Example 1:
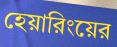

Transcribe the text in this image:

হেয়ারিংয়ের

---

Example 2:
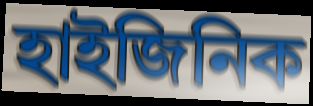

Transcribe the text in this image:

হাইজিনিক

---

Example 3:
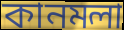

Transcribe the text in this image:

কানমলা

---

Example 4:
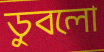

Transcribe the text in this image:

ডুবলো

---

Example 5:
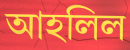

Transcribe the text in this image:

আহলিল